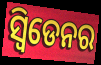
ସ୍ୱିଡେନର